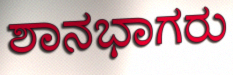
ಶಾನಭಾಗರು